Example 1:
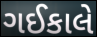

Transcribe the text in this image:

ગઈકાલે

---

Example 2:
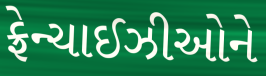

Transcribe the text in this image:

ફ્રેન્ચાઈઝીઓને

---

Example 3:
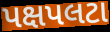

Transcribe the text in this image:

પક્ષપલટા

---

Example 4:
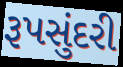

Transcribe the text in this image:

રૂપસુંદરી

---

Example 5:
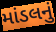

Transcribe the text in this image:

માંડલનું